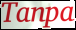
Tanpa